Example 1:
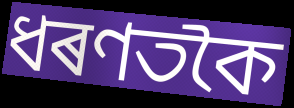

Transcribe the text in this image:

ধৰণতকৈ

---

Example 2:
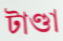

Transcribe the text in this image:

টাণ্ডা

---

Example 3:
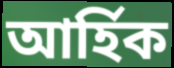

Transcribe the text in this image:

আৰ্হিক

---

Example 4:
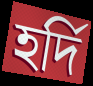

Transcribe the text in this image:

হৰ্দি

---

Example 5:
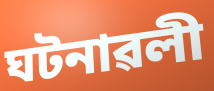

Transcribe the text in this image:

ঘটনাৱলী